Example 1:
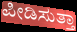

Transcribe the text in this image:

ಪೀಡಿಸುತ್ತಾ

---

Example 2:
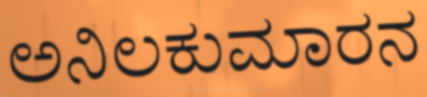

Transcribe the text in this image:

ಅನಿಲಕುಮಾರನ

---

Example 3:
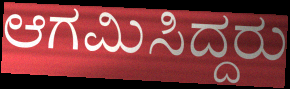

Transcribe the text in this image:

ಆಗಮಿಸಿದ್ದರು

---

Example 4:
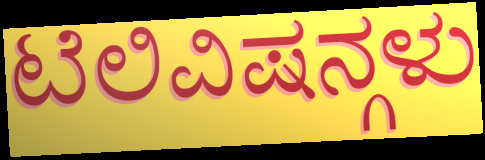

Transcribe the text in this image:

ಟೆಲಿವಿಷನ್ಗಳು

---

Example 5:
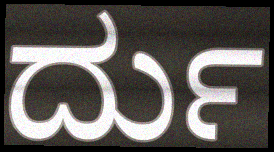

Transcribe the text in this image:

ರ್ದು